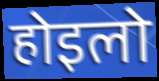
होइलो